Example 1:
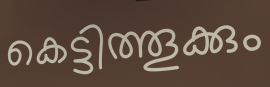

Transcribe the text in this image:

കെട്ടിത്തൂക്കും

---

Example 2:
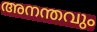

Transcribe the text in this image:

അനന്തവും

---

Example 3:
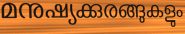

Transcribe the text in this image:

മനുഷ്യക്കുരങ്ങുകളും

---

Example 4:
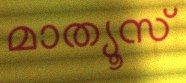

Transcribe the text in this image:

മാത്യൂസ്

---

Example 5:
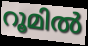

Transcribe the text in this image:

റൂമിൽ